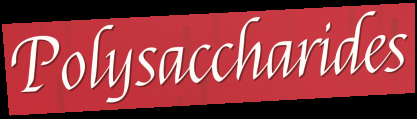
Polysaccharides